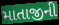
માતાજીની